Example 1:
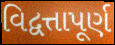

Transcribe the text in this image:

વિદ્વત્તાપૂર્ણ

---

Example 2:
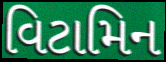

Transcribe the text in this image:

વિટામિન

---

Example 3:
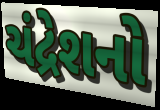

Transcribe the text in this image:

ચંદ્રેશનો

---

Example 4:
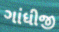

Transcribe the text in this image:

ગાંધીજી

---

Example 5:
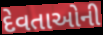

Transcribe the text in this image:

દેવતાઓની